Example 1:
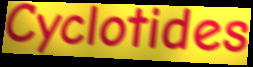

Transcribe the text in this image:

Cyclotides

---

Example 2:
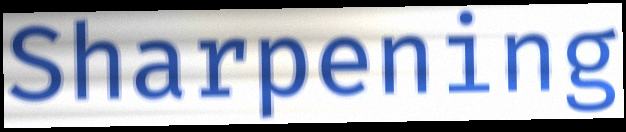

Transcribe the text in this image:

Sharpening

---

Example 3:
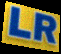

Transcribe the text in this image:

LR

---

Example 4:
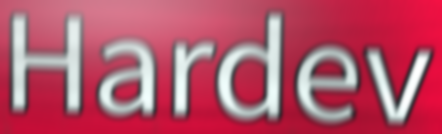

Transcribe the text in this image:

Hardev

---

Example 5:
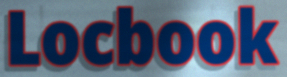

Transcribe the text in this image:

Locbook